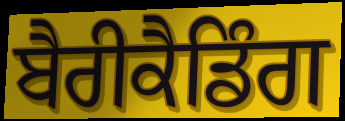
ਬੈਰੀਕੈਡਿੰਗ